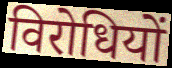
विरोधियों